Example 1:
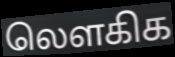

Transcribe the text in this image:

லௌகிக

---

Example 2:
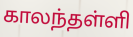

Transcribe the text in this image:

காலந்தள்ளி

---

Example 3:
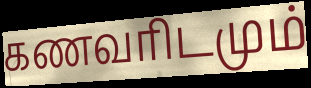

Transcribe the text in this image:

கணவரிடமும்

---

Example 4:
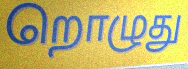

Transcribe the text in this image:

றொழுது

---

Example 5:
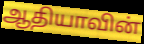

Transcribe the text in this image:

ஆதியாவின்